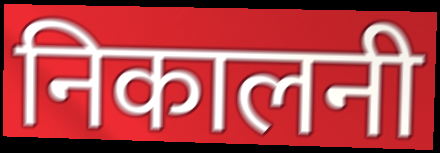
निकालनी